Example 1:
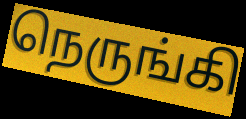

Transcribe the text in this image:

நெருங்கி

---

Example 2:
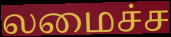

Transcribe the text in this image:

லமைச்ச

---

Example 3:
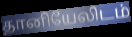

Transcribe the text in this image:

தானியேலிடம்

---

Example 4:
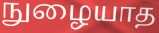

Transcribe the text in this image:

நுழையாத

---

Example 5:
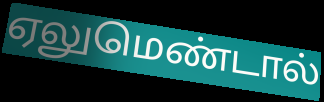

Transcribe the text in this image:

ஏலுமெண்டால்